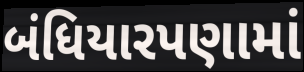
બંધિયારપણામાં